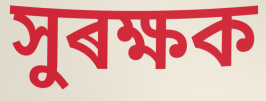
সুৰক্ষক